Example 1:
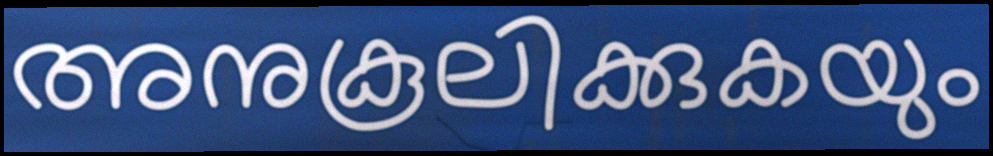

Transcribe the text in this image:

അനുകൂലിക്കുകയും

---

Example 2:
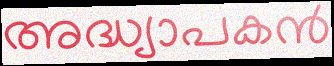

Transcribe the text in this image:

അദ്ധ്യാപകൻ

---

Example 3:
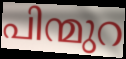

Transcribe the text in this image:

പിന്മുറ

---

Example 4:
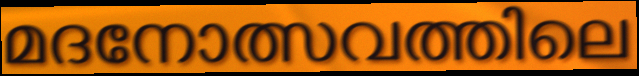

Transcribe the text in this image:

മദനോത്സവത്തിലെ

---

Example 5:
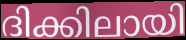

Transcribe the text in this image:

ദിക്കിലായി